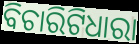
ବିଚାରିଟିଧାରା